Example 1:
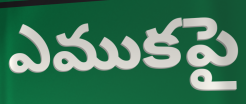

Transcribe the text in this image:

ఎముకపై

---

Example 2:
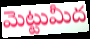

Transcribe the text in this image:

మెట్టుమీద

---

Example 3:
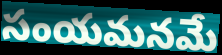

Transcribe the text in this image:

సంయమనమే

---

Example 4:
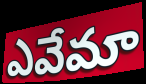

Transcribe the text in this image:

ఎవేమా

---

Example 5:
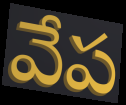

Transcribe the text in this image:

వేప